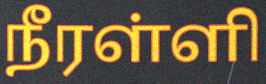
நீரள்ளி